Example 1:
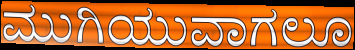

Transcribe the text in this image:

ಮುಗಿಯುವಾಗಲೂ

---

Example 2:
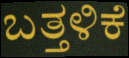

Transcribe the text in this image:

ಬತ್ತಳಿಕೆ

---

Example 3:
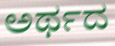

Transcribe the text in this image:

ಅರ್ಥದ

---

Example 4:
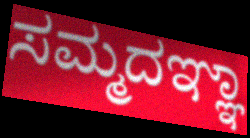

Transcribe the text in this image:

ಸಮ್ಮದಞ್ಞಾ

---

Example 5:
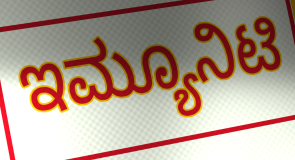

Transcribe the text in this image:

ಇಮ್ಯೂನಿಟಿ